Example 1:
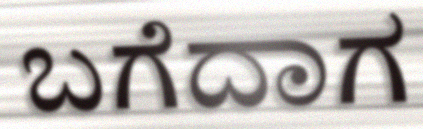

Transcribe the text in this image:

ಬಗೆದಾಗ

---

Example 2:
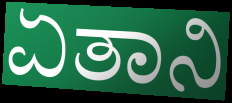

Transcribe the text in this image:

ಏತಾನಿ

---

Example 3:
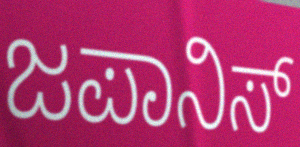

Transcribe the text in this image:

ಜಪಾನಿಸ್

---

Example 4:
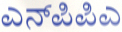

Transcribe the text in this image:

ಎನ್‌ಪಿಪಿಎ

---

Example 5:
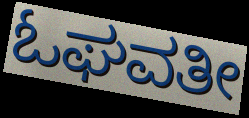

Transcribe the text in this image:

ಓಘವತೀ